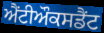
ਐਂਟੀਔਕਸਡੈਂਟ